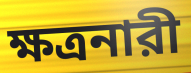
ক্ষত্রনারী